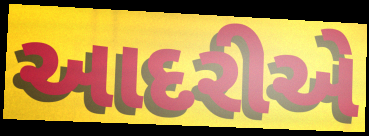
આદરીએ